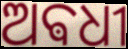
ଅଵଧୀ